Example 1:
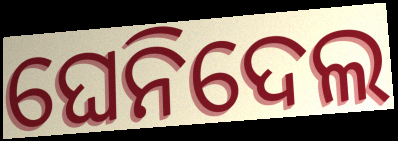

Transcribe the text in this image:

ଘେନିଦେଲ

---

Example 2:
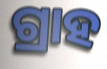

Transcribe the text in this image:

ଗ୍ରାହ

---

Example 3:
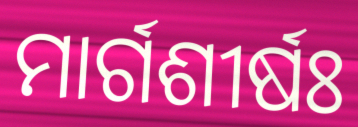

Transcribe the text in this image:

ମାର୍ଗଶୀର୍ଷଃ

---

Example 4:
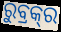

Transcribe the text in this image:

ରୁବ୍ରକ୍‍ର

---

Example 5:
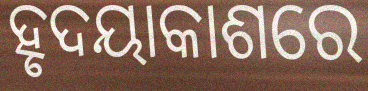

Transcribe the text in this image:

ହୃଦୟାକାଶରେ